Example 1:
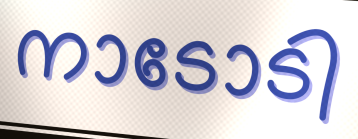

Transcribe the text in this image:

നാടോടി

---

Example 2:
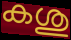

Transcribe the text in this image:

കശു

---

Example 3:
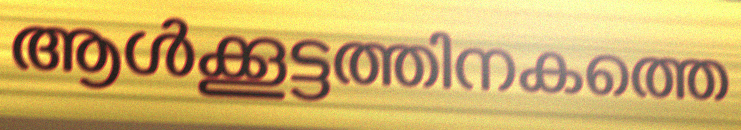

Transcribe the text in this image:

ആൾക്കൂട്ടത്തിനകത്തെ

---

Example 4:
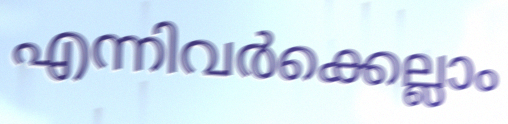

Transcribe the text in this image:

എന്നിവർക്കെല്ലാം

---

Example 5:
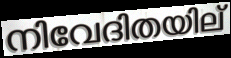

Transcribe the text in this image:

നിവേദിതയില്